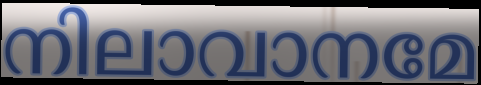
നിലാവാനമേ